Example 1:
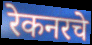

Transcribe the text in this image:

रेकनरचे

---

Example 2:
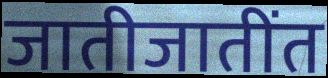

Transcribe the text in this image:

जातीजातींत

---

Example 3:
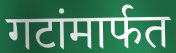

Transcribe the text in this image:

गटांमार्फत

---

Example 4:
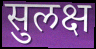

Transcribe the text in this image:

सुलक्ष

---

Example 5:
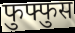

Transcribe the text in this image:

फुफ्फुस